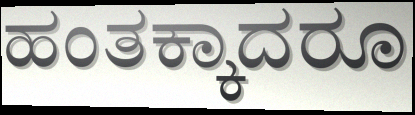
ಹಂತಕ್ಕಾದರೂ